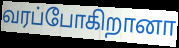
வரப்போகிறானா